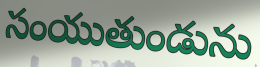
సంయుతుండును